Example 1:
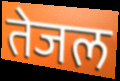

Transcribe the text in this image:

तेजल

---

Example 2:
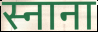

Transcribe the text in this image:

स्नाना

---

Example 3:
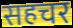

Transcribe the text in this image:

सहचर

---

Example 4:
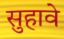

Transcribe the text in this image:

सुहावे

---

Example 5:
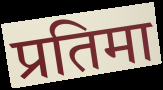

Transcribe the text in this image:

प्रतिमा